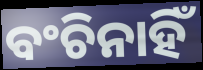
ବଂଚିନାହିଁ